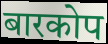
बारकोप